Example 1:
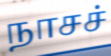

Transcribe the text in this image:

நாசச்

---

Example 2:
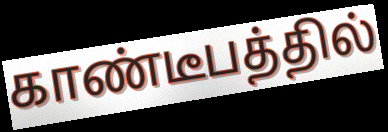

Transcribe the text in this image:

காண்டீபத்தில்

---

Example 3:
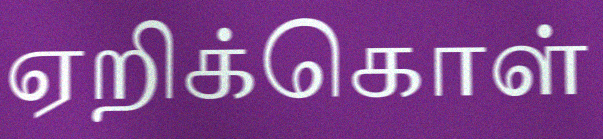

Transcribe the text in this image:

ஏறிக்கொள்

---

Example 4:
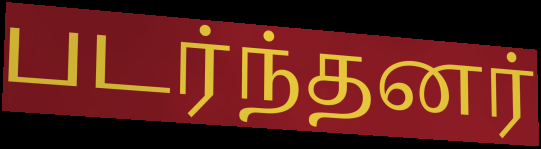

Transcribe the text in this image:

படர்ந்தனர்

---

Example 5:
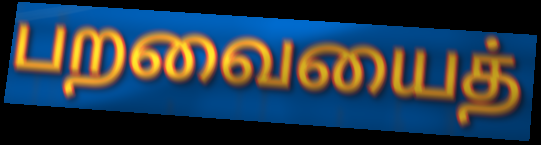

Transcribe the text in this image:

பறவையைத்